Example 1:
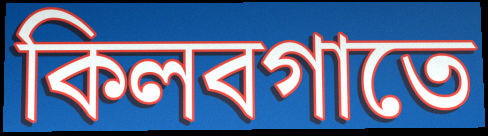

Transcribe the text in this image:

কিলবগাতে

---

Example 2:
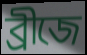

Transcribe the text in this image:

ব্রীজে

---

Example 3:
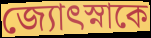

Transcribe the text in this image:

জ্যোৎস্নাকে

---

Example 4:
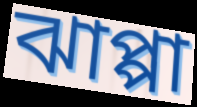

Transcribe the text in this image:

ঝাপ্পা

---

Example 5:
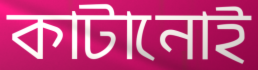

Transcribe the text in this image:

কাটানোই